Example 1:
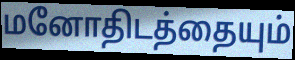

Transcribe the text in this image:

மனோதிடத்தையும்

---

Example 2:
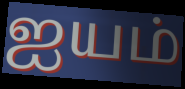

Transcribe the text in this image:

ஐயம்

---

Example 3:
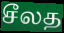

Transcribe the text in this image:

சீலத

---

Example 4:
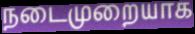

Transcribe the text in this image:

நடைமுறையாக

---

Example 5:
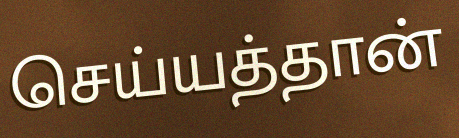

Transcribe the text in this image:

செய்யத்தான்